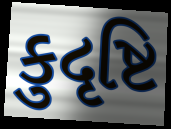
કુદૃષ્ટિ